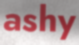
ashy